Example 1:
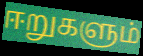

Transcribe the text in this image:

ஈறுகளும்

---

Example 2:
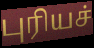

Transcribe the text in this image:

புரியச்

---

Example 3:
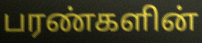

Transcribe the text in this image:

பரண்களின்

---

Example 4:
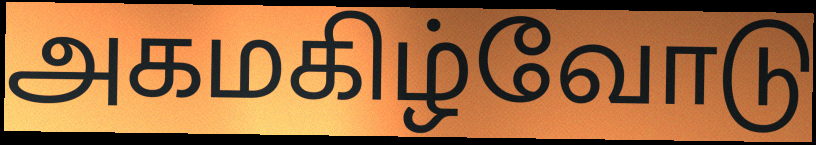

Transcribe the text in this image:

அகமகிழ்வோடு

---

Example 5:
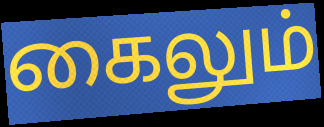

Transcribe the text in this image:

கைலும்